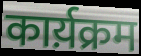
कार्य़क्रम